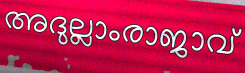
അദുല്ലാംരാജാവ്